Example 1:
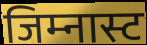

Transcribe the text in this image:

जिम्नास्ट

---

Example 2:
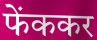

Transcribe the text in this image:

फेंककर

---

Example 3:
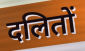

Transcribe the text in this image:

दलितों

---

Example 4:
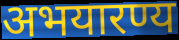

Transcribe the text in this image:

अभयारण्य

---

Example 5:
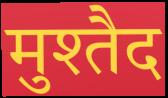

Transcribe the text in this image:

मुश्तैद